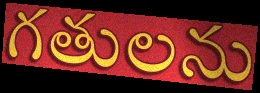
గతులను